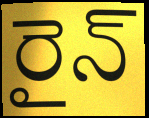
రైన్